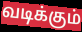
வடிக்கும்